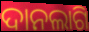
ଦାନଲାଗି